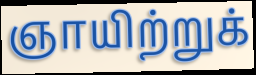
ஞாயிற்றுக்